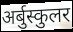
अर्बुस्कुलर